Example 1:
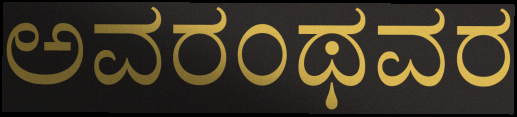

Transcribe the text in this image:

ಅವರಂಥವರ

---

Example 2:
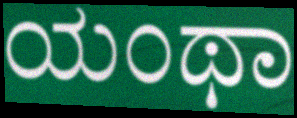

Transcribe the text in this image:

ಯಂಥಾ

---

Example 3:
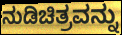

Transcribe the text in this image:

ನುಡಿಚಿತ್ರವನ್ನು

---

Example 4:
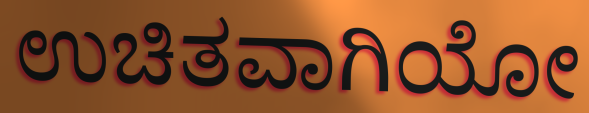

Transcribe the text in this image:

ಉಚಿತವಾಗಿಯೋ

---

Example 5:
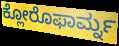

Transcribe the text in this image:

ಕ್ಲೋರೊಫಾರ್ಮ್ನ